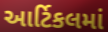
આર્ટિકલમાં